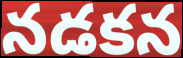
నడకన